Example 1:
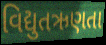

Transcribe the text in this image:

વિદ્યુતઋણતા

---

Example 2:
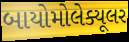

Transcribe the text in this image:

બાયોમોલેક્યૂલર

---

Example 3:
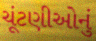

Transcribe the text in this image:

ચૂંટણીઓનું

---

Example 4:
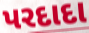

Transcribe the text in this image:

પરદાદા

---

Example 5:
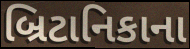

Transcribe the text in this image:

બ્રિટાનિકાના